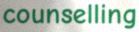
counselling